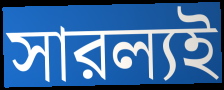
সারল্যই